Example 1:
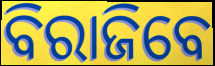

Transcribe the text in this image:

ବିରାଜିବେ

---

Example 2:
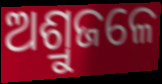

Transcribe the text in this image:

ଅଶ୍ରୁଜଳେ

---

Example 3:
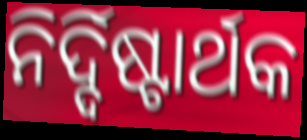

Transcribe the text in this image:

ନିର୍ଦ୍ଦିଷ୍ଟାର୍ଥକ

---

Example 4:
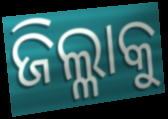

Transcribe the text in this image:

ଜିଲ୍ଳାକୁ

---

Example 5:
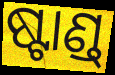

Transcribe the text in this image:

ଷ୍ଟାଣ୍ଡ୍